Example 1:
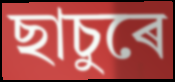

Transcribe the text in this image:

ছাচুৰে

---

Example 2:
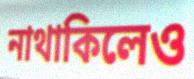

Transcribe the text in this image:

নাথাকিলেও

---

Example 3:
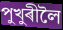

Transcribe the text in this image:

পুখুৰীলৈ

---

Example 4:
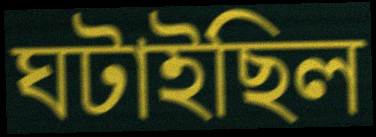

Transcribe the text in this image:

ঘটাইছিল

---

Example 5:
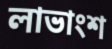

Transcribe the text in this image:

লাভাংশ